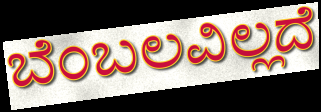
ಬೆಂಬಲವಿಲ್ಲದೆ